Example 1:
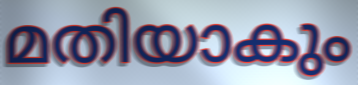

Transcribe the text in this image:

മതിയാകും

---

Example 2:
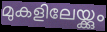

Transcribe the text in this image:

മുകളിലേയ്ക്കും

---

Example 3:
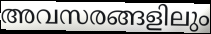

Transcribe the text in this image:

അവസരങ്ങളിലും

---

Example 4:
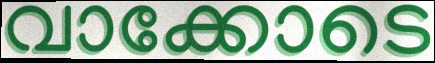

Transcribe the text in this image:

വാക്കോടെ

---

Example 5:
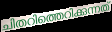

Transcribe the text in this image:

ചിതറിത്തെറിക്കുന്നത്